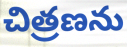
చిత్రణను